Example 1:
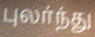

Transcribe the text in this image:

புலர்ந்து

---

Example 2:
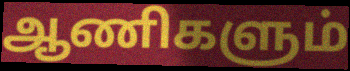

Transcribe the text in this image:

ஆணிகளும்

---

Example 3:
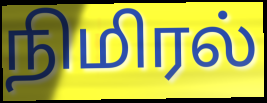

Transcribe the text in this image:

நிமிரல்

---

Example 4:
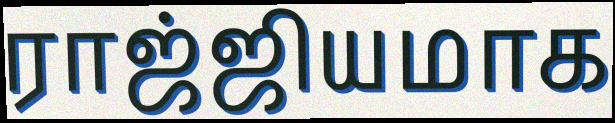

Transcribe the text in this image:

ராஜ்ஜியமாக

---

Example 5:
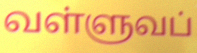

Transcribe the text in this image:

வள்ளுவப்